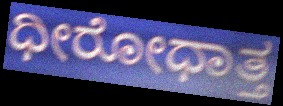
ಧೀರೋಧಾತ್ತ